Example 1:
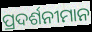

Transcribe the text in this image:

ପ୍ରଦର୍ଶନୀମାନ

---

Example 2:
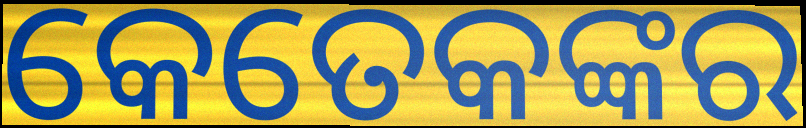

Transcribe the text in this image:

କେତେକଙ୍କର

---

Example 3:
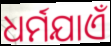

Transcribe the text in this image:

ଧର୍ମଯାଏଁ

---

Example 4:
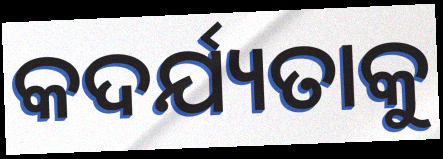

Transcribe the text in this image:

କଦର୍ଯ୍ୟତାକୁ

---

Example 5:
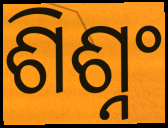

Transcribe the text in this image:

ଶିଶ୍ନଂ